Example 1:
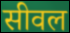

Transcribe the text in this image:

सीवल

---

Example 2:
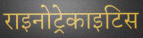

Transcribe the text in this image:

राइनोट्रेकाइटिस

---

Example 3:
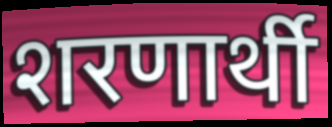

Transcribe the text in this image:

शरणार्थी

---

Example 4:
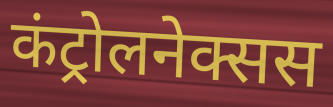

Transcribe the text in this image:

कंट्रोलनेक्सस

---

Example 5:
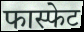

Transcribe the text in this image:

फास्फेट